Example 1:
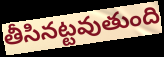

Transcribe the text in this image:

తీసినట్టవుతుంది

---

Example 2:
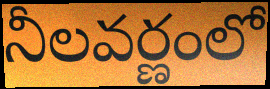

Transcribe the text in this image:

నీలవర్ణంలో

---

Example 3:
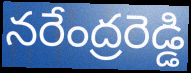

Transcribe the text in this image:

నరేంద్రరెడ్డి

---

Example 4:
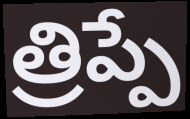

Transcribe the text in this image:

త్రిప్పే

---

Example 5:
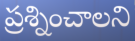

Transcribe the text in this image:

ప్రశ్నించాలని